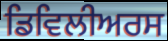
ਡਿਵਿਲੀਅਰਸ